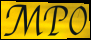
MPO